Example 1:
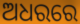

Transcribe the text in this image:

ଅଧରରେ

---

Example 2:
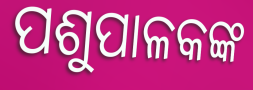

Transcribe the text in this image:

ପଶୁପାଳକଙ୍କ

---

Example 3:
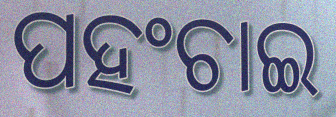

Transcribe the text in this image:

ପହଂଚାଇ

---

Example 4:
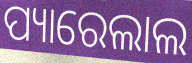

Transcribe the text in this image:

ପ୍ୟାରେଲାଲ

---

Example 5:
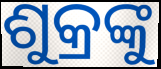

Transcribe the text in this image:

ଶୁକ୍ରଙ୍କୁ